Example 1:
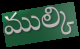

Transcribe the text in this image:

ముల్కి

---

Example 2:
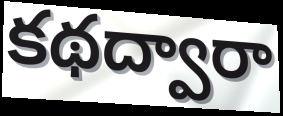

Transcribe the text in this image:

కథద్వారా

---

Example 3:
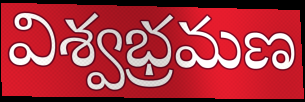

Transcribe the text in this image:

విశ్వభ్రమణ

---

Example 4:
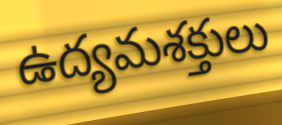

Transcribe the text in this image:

ఉద్యమశక్తులు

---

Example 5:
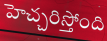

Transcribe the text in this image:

హెచ్చరిస్తోంది